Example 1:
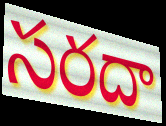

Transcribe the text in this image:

సరదా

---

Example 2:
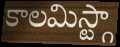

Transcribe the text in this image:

కాలమిస్ట్గా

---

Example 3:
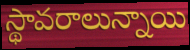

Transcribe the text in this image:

స్థావరాలున్నాయి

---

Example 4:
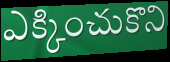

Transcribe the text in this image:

ఎక్కించుకొని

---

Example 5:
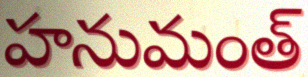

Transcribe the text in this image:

హనుమంత్